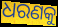
ଧରଣକୁ